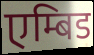
एम्बिड